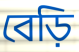
বেড়ি